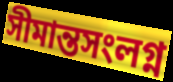
সীমান্তসংলগ্ন